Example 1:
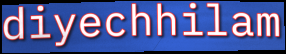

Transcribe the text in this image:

diyechhilam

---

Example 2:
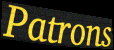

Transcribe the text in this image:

Patrons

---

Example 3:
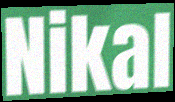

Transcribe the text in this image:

Nikal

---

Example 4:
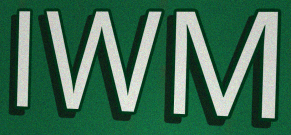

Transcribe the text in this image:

IWM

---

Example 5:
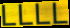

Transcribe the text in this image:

LLLL